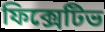
ফিক্সেটিভ